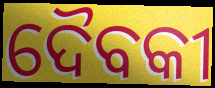
ଦୈବକୀ